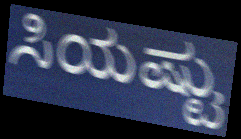
ಸಿಯಷ್ಟು